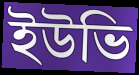
ইউভি